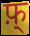
फ़्